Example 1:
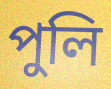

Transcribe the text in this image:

পুলি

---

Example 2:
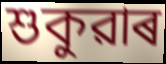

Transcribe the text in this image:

শুকুৱাৰ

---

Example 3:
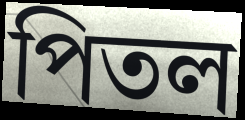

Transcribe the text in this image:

পিতল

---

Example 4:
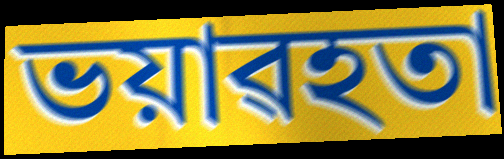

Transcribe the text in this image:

ভয়াৱহতা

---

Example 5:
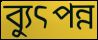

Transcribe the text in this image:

ব্যুৎপন্ন